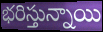
భరిస్తున్నాయి